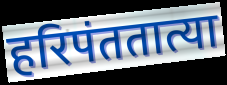
हरिपंततात्या